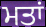
ਮਤਾਂ